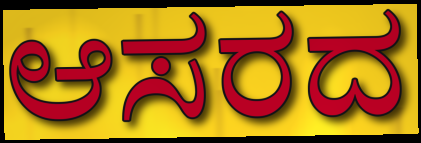
ಆಸರದ